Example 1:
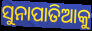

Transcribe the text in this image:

ସୁନାପାତିଆକୁ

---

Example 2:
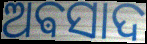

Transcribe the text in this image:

ଅଵସାଦ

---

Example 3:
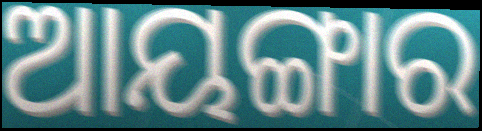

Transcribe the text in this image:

ଆୟଙ୍ଗାର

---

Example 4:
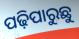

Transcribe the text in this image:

ପଢ଼ିପାରୁଛୁ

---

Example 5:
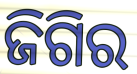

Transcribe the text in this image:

ଜିଗିର